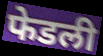
फेडली